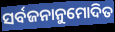
ସର୍ବଜନାନୁମୋଦିତ